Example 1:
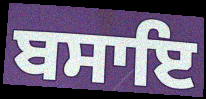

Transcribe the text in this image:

ਬਸਾਇ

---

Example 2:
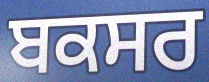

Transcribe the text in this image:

ਬਕਸਰ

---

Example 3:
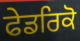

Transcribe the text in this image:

ਫੇਡਰਿਕੋ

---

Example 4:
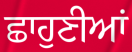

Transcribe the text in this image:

ਛਾਹੁਣੀਆਂ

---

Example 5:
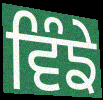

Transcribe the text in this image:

ਵਿੰਙੇ